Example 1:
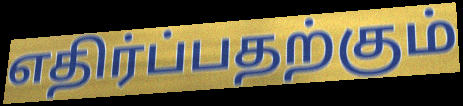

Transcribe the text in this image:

எதிர்ப்பதற்கும்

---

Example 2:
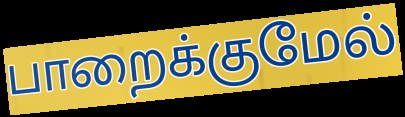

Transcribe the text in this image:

பாறைக்குமேல்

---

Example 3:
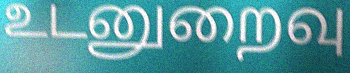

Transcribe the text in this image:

உடனுறைவு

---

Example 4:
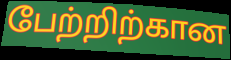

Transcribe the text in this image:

பேற்றிற்கான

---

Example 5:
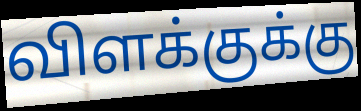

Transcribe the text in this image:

விளக்குக்கு